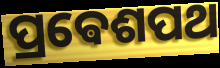
ପ୍ରଵେଶପଥ